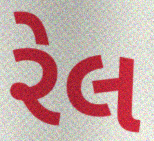
રેલ